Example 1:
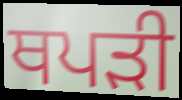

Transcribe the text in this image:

ਥਪੜੀ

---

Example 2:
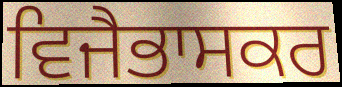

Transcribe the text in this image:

ਵਿਜੈਭਾਸਕਰ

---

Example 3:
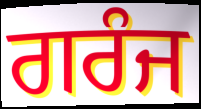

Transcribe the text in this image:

ਗਰੰਜ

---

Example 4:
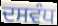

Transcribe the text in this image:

ਦਸਵੰਧ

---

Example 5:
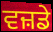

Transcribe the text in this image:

ਵਜ਼ਡੇ